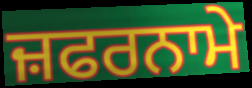
ਜ਼ਫਰਨਾਮੇ